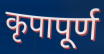
कृपापूर्ण